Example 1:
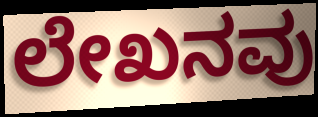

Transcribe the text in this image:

ಲೇಖನವು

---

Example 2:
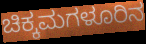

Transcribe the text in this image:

ಚಿಕ್ಕಮಗಳೂರಿನ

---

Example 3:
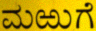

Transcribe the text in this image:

ಮಱುಗೆ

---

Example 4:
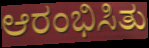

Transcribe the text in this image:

ಆರಂಭಿಸಿತು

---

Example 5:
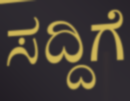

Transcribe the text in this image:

ಸದ್ದಿಗೆ